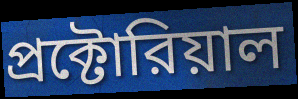
প্রক্টোরিয়াল